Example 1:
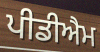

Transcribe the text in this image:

ਪੀਡੀਐਮ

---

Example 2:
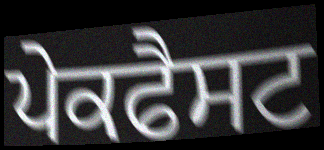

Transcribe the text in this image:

ਪੇਕਫੈਸਟ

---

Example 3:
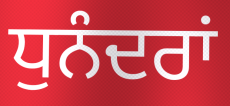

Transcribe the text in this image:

ਧੁਨੰਦਰਾਂ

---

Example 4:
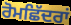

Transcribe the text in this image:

ਰੋਮਛਿੱਦਰਾਂ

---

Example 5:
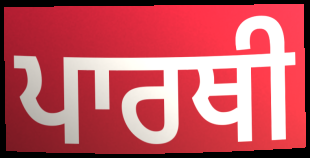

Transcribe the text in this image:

ਪਾਰਥੀ